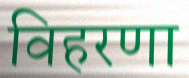
विहरणा